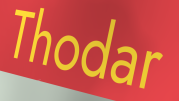
Thodar